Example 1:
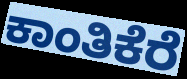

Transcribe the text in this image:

ಕಾಂತಿಕೆರೆ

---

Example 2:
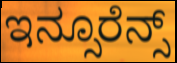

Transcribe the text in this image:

ಇನ್ಸೂರೆನ್ಸ್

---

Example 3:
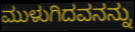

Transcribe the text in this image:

ಮುಳುಗಿದವನನ್ನು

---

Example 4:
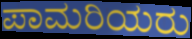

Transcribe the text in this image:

ಪಾಮರಿಯರು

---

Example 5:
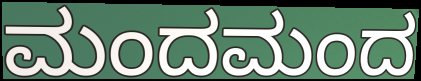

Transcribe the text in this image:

ಮಂದಮಂದ